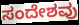
ಸಂದೇಶವು